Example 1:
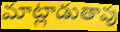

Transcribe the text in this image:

మాట్లాడుతావు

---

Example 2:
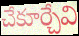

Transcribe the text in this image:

చేకూర్చేవి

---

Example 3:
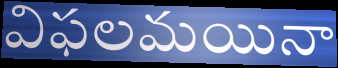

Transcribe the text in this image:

విఫలమయినా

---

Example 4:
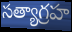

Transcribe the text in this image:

సత్యాగ్రహ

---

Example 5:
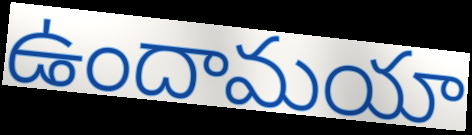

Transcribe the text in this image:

ఉందామయా